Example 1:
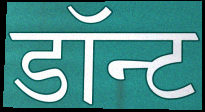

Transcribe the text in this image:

डॉन्ट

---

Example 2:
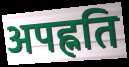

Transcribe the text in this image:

अपह्नति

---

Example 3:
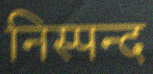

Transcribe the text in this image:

निस्पन्द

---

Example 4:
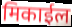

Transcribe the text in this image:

मिकाईल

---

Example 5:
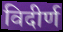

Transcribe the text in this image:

विदीर्ण